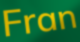
Fran